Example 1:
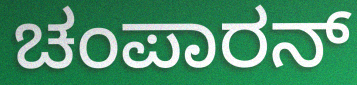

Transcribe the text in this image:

ಚಂಪಾರನ್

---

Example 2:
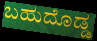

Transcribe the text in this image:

ಬಹುದೊಡ್ಡ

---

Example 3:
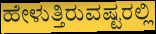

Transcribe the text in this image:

ಹೇಳುತ್ತಿರುವಷ್ಟರಲ್ಲಿ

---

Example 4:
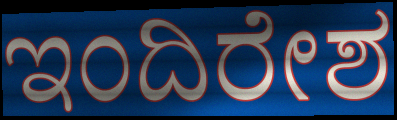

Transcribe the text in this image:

ಇಂದಿರೇಶ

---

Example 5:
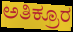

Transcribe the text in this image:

ಅತಿಕ್ರೂರ